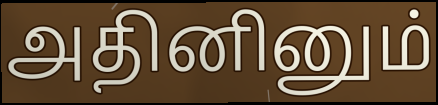
அதினினும்